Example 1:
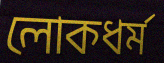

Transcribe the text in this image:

লোকধর্ম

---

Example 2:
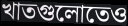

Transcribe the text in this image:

খাতগুলোতেও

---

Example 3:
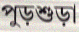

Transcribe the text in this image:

পুড়শুড়া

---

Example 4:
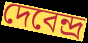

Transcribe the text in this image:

দেবেন্দ্র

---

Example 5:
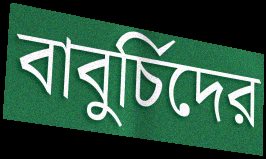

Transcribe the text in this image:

বাবুর্চিদের